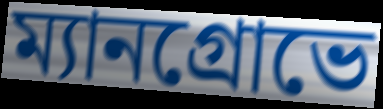
ম্যানগ্রোভে